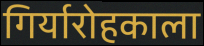
गिर्यारोहकाला